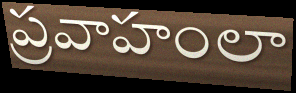
ప్రవాహంలా